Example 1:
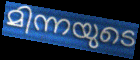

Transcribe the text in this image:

മിന്നയുടെ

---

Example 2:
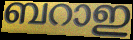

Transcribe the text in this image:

ബറാഇ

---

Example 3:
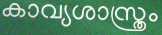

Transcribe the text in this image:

കാവ്യശാസ്ത്രം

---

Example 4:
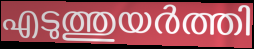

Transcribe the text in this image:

എടുത്തുയർത്തി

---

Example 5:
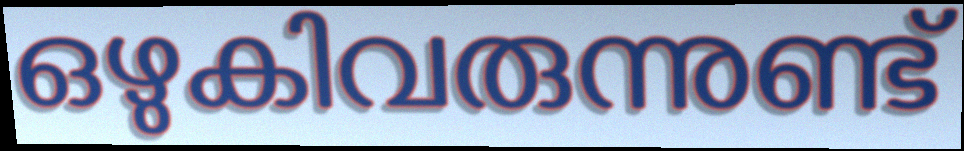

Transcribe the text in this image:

ഒഴുകിവരുന്നുണ്ട്